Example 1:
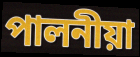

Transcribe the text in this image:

পালনীয়া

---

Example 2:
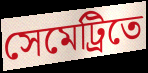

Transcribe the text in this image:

সেমেট্রিতে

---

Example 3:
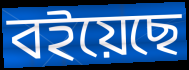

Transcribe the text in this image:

বইয়েছে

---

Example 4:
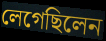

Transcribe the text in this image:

লেগেছিলেন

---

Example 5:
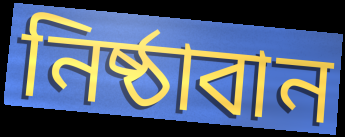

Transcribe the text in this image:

নিষ্ঠাবান